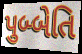
પુબ્બેતિ